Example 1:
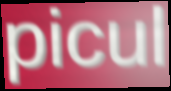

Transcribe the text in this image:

picul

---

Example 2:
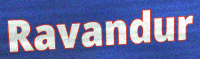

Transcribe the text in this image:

Ravandur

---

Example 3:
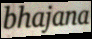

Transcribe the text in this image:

bhajana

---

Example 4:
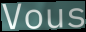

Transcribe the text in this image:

Vous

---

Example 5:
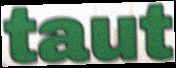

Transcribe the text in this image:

taut